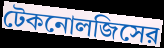
টেকনোলজিসের